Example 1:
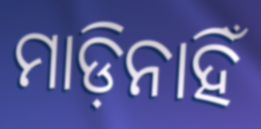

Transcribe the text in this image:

ମାଡ଼ିନାହିଁ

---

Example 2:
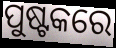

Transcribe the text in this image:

ପୁଷ୍ଟକରେ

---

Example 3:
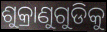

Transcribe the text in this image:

ଶୁକ୍ରାଣୁଗୁଡିକୁ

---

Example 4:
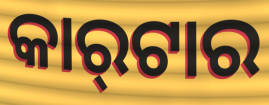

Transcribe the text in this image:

କାର୍‍ଟାର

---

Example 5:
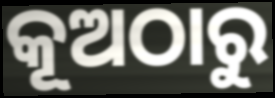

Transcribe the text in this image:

କୂଅଠାରୁ